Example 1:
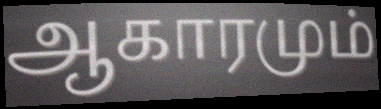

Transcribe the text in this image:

ஆகாரமும்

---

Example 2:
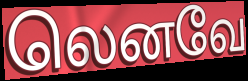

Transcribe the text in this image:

லெனவே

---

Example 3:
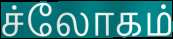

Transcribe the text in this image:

ச்லோகம்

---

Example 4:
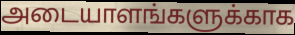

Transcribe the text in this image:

அடையாளங்களுக்காக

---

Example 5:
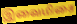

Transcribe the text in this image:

இவைமிசை